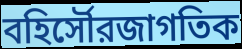
বহির্সৌরজাগতিক